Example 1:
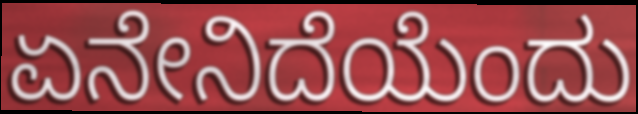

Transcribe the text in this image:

ಏನೇನಿದೆಯೆಂದು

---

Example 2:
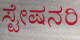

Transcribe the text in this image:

ಸ್ಟೇಷನರಿ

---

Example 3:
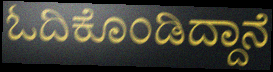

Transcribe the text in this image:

ಓದಿಕೊಂಡಿದ್ದಾನೆ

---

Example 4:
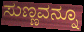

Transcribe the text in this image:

ಸುಣ್ಣವನ್ನೂ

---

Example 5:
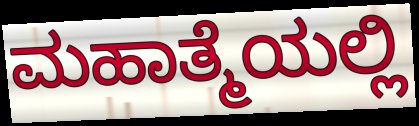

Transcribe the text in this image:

ಮಹಾತ್ಮೆಯಲ್ಲಿ